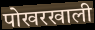
पोखरखाली